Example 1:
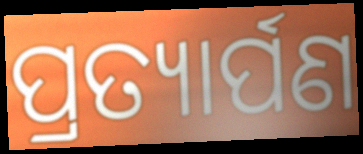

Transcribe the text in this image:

ପ୍ରତ୍ୟାର୍ପଣ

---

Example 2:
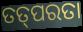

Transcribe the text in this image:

ତତ୍‌ପରତା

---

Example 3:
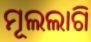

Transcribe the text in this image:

ମୂଲଲାଗି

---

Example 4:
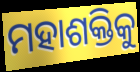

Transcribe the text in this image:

ମହାଶକ୍ତିକୁ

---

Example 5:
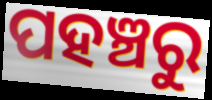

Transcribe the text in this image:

ପହଞ୍ଚରୁ